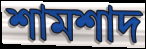
শামশাদ